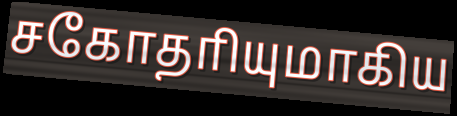
சகோதரியுமாகிய